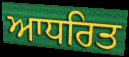
ਆਧਰਿਤ